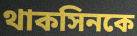
থাকসিনকে